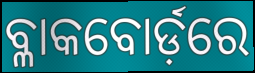
ବ୍ଳାକବୋର୍ଡ଼ରେ